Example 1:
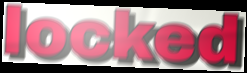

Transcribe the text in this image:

locked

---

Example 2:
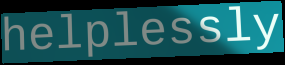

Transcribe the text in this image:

helplessly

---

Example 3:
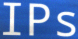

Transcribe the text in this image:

IPs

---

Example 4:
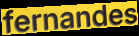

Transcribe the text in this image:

fernandes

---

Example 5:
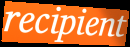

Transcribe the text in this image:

recipient